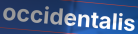
occidentalis